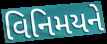
વિનિમયને